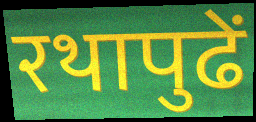
रथापुढें